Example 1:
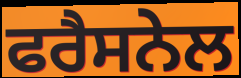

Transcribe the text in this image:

ਫਰੈਸਨੇਲ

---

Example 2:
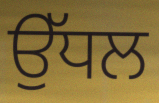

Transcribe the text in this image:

ਉੱਧਲ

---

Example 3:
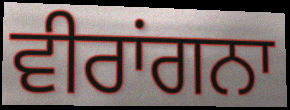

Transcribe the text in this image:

ਵੀਰਾਂਗਨਾ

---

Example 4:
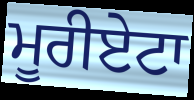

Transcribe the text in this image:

ਮੂਰੀਏਟਾ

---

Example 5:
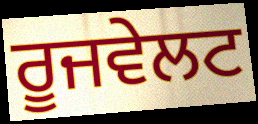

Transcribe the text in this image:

ਰੂਜਵੇਲਟ